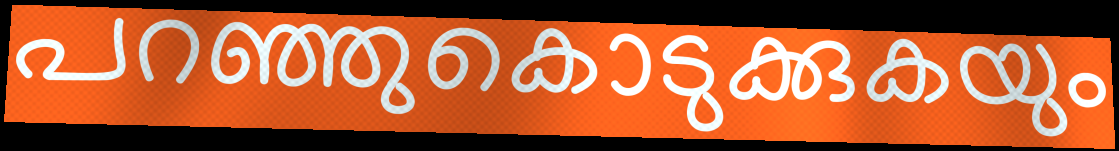
പറഞ്ഞുകൊടുക്കുകയും